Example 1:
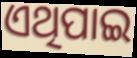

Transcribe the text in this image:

ଏଥିପାଇ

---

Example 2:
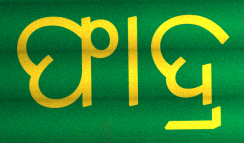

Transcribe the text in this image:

ଫାଦ୍ର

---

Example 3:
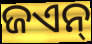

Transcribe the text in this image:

ଜଏନ୍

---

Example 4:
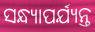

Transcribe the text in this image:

ସନ୍ଧ୍ୟାପର୍ଯ୍ୟନ୍ତ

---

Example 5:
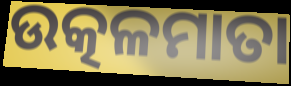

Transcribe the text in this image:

ଉତ୍କଳମାତା